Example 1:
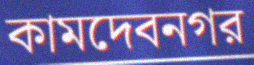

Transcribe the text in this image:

কামদেবনগর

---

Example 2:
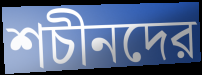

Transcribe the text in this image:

শচীনদের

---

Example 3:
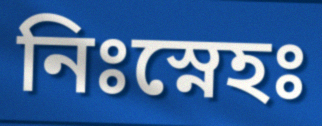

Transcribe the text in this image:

নিঃস্নেহঃ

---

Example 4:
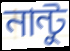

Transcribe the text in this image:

নান্টু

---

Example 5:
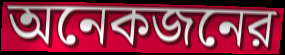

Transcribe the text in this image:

অনেকজনের